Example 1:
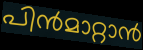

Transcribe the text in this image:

പിൻമാറ്റാൻ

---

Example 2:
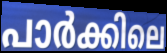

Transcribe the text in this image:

പാർക്കിലെ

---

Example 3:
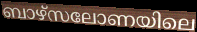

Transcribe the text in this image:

ബാഴ്സലോണയിലെ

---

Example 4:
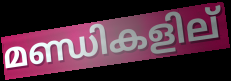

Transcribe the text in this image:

മണ്ഡികളില്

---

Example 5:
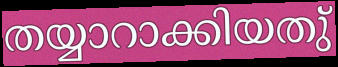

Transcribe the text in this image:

തയ്യാറാക്കിയതു്